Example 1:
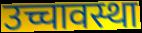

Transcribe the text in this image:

उच्चावस्था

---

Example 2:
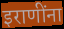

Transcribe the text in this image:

इराणींना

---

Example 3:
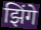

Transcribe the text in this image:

झिंगे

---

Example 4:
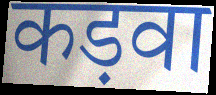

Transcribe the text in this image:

कड़वा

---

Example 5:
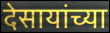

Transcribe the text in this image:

देसायांच्या